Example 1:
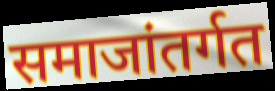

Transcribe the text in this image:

समाजांतर्गत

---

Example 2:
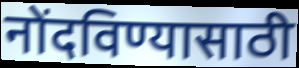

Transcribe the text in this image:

नोंदविण्यासाठी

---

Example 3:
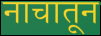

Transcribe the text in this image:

नाचातून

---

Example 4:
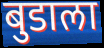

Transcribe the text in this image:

बुडाला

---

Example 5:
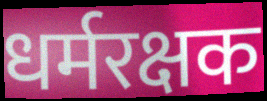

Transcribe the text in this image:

धर्मरक्षक